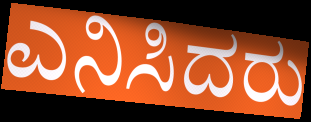
ಎನಿಸಿದರು